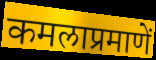
कमलाप्रमाणें